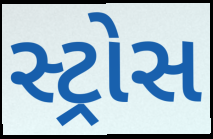
સ્ટ્રોસ